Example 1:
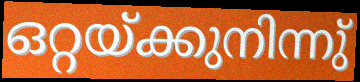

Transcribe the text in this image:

ഒറ്റയ്ക്കുനിന്നു്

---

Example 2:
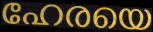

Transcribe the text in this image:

ഹേരയെ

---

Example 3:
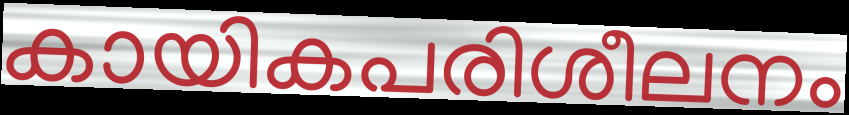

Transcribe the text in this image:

കായികപരിശീലനം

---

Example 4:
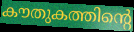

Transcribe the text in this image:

കൗതുകത്തിന്റെ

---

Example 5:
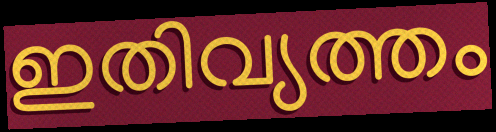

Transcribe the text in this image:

ഇതിവ്യത്തം